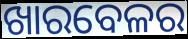
ଖାରବେଳର